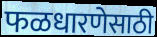
फळधारणेसाठी